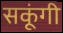
सकूंगी